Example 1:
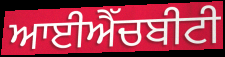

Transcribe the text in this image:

ਆਈਐੱਚਬੀਟੀ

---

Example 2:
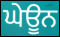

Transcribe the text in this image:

ਘੇਊਨ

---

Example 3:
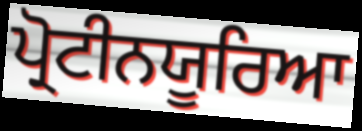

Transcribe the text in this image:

ਪ੍ਰੋਟੀਨਯੂਰਿਆ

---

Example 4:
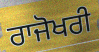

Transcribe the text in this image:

ਰਾਜੋਖਰੀ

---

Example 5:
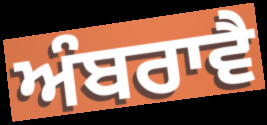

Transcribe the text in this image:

ਅੰਬਰਾਵੈ